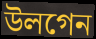
উলগেন